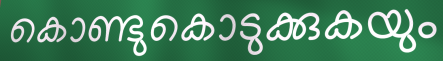
കൊണ്ടുകൊടുക്കുകയും